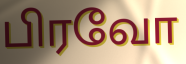
பிரவோ